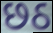
છઠ